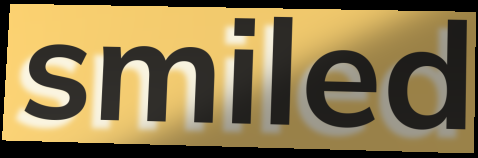
smiled